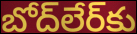
బోద్‌లేర్‌కు